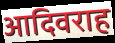
आदिवराह